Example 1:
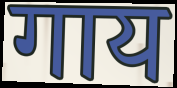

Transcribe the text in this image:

गाय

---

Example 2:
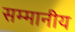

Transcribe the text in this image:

सम्मानीय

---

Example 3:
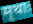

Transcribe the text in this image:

मृथाः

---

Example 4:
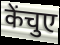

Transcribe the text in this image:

केंचुए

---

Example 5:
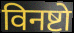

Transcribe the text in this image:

विनष्टो